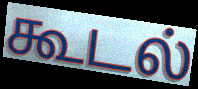
கூடல்